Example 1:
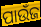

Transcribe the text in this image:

ପାଉଁଜ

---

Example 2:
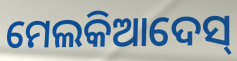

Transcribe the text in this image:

ମେଲକିଆଦେସ୍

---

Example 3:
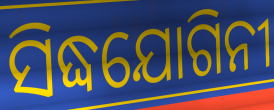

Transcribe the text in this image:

ସିଦ୍ଧଯୋଗିନୀ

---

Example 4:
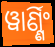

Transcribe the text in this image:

ୱାର୍ଣ୍ଣିଂ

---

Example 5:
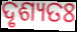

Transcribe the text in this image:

ଦୃଶ୍ୟତଃ